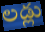
లడ్లు